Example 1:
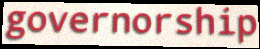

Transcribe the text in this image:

governorship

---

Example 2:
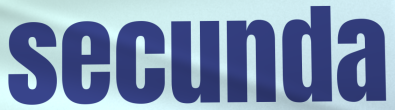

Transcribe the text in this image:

secunda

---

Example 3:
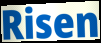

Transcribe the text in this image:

Risen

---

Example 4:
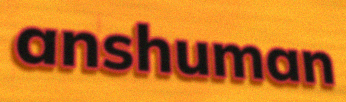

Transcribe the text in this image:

anshuman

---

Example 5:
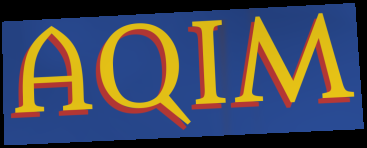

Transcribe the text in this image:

AQIM